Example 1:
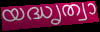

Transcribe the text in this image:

യദ്ധൃത്വാ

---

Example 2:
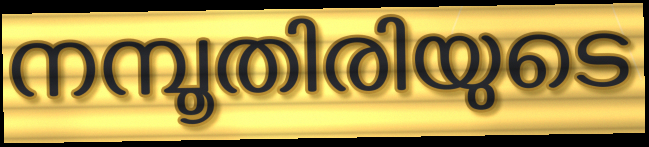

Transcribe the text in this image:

നമ്പൂതിരിയുടെ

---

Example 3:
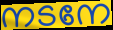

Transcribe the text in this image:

നടനേ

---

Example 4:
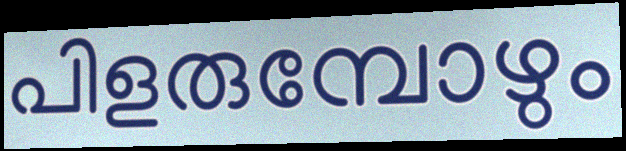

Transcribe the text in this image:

പിളരുമ്പോഴും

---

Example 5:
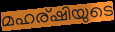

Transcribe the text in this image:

മഹര്ഷിയുടെ